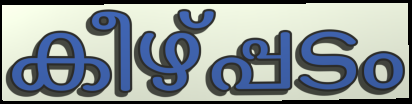
കീഴ്പ്പടം